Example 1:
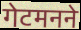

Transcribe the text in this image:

गेटमनने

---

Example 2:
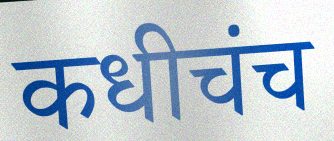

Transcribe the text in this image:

कधीचंच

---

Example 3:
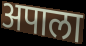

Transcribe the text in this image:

अपाला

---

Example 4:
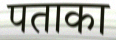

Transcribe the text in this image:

पताका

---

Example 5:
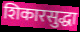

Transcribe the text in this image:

शिकारसुद्धा